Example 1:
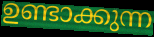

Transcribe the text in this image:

ഉണ്ടാക്കുന്ന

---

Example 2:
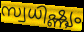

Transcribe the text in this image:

സ്വധിഷ്ണ്യം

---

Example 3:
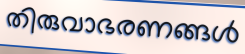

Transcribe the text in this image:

തിരുവാഭരണങ്ങൾ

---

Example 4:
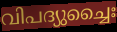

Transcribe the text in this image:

വിപദ്യുച്ചൈഃ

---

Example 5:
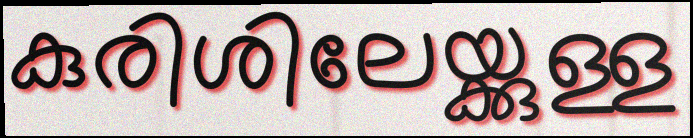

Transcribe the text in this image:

കുരിശിലേയ്ക്കുള്ള